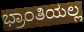
ಭ್ರಾಂತಿಯಲ್ಲ